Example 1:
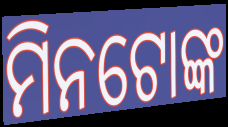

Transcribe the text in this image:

ମିନଟୋଙ୍କ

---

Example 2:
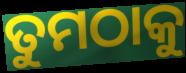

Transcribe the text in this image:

ତୁମଠାକୁ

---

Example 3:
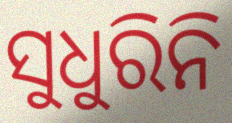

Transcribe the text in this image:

ସୁଧୁରିନି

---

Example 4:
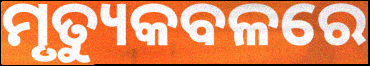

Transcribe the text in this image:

ମୃତ୍ୟୁକବଳରେ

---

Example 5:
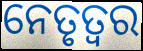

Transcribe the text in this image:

ନେତୃତ୍ବର